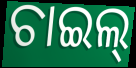
ଚାଇଲ୍